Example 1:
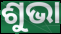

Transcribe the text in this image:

ଶୁଭା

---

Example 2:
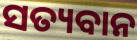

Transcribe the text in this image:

ସତ୍ୟବାନ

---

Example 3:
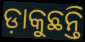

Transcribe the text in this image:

ଡ଼ାକୁଛନ୍ତି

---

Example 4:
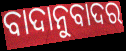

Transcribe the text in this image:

ବାଦାନୁବାଦର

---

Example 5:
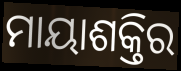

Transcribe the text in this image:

ମାୟାଶକ୍ତିର